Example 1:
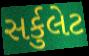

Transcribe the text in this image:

સર્કુલેટ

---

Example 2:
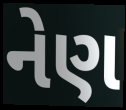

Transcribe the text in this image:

નેણ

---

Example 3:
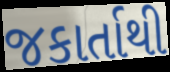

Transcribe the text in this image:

જકાર્તાથી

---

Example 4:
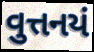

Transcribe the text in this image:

વુત્તનયં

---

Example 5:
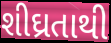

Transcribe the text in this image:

શીઘ્રતાથી